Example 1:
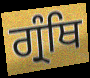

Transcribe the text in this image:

ਗ੍ਰੰਥਿ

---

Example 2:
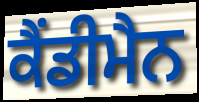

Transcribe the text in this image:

ਕੈਂਡੀਮੈਨ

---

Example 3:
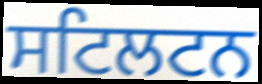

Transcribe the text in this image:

ਸਟਿਲਟਨ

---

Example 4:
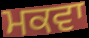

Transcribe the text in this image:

ਮਕਵਾ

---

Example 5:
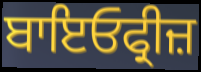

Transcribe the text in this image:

ਬਾਇਓਫ੍ਰੀਜ਼